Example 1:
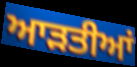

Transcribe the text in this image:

ਆਡ਼ਤੀਆਂ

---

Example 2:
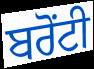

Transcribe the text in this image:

ਬਰੋਂਟੀ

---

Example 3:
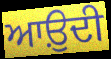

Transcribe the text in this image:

ਆਉ਼ਦੀ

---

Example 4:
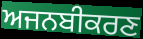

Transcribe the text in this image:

ਅਜਨਬੀਕਰਣ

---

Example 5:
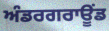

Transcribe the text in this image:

ਅੰਡਰਗਰਾਊਂਡ